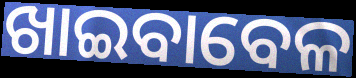
ଖାଇବାବେଳ